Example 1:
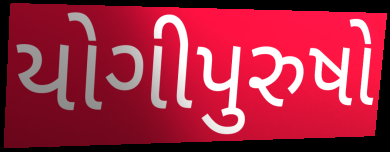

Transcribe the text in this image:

યોગીપુરુષો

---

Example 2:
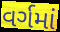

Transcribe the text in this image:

વર્ગમાં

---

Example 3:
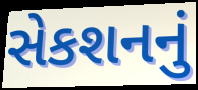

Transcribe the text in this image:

સેકશનનું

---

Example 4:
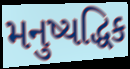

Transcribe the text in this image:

મનુષ્યદ્ધિક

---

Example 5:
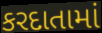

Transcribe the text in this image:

કરદાતામાં